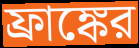
ফ্রাঙ্কের